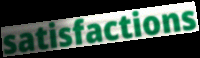
satisfactions